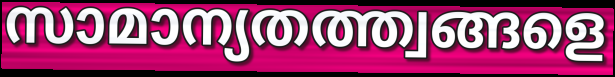
സാമാന്യതത്ത്വങ്ങളെ